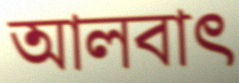
আলবাৎ